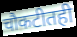
चौकटीतही